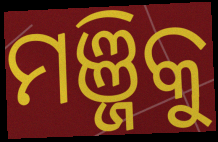
ମଞ୍ଜିକୁ